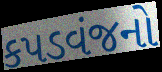
કપડવંજનો